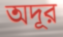
অদূর